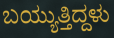
ಬಯ್ಯುತ್ತಿದ್ದಳು